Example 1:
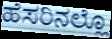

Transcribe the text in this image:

ಹೆಸರಿನಲ್ಲೊ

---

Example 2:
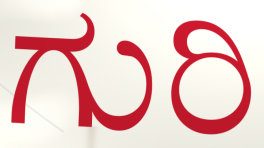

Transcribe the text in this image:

ಗುರಿ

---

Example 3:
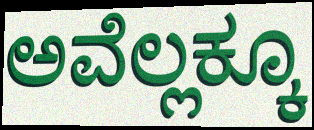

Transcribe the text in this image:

ಅವೆಲ್ಲಕ್ಕೂ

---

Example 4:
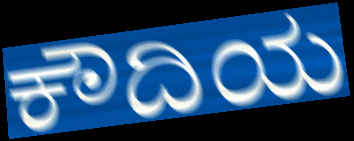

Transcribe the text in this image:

ಕೌದಿಯ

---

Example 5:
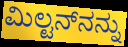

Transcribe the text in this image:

ಮಿಲ್ಟನ್‌ನನ್ನು